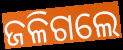
ଜଳିଗଲେ